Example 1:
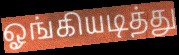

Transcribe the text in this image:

ஓங்கியடித்து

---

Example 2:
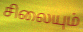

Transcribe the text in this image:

சிலையும்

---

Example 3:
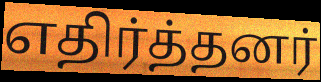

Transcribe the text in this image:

எதிர்த்தனர்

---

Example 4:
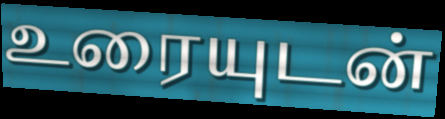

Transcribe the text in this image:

உரையுடன்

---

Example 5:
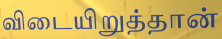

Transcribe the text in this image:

விடையிறுத்தான்